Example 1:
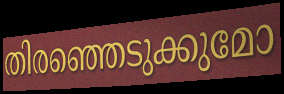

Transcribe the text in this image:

തിരഞ്ഞെടുക്കുമോ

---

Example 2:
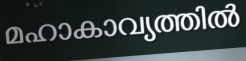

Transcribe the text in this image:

മഹാകാവ്യത്തിൽ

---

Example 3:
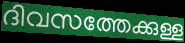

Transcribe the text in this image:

ദിവസത്തേക്കുള്ള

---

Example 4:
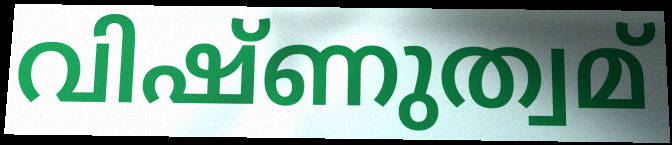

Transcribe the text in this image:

വിഷ്ണുത്വമ്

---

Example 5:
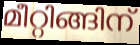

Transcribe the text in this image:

മീറ്റിങ്ങിന്